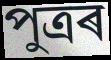
পুত্ৰৰ